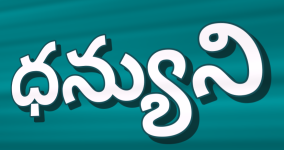
ధన్యుని